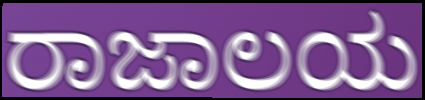
ರಾಜಾಲಯ